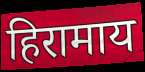
हिरामाय